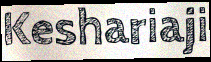
Keshariaji